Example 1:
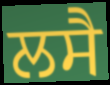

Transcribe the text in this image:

ਲਸੈ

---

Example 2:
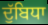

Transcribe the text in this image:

ਦੁੱਬਿਧਾ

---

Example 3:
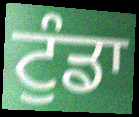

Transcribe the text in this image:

ਟੁੰਡਾ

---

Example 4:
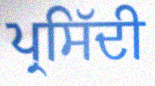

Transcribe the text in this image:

ਪ੍ਰਸਿੱਦੀ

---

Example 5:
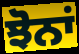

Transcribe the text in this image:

ਝੋਨਾਂ